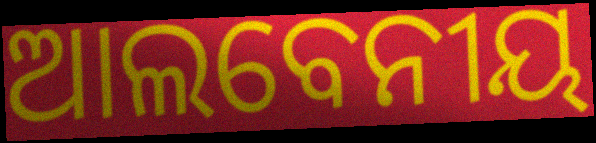
ଆଲବେନୀୟ